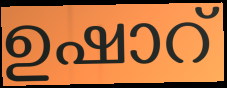
ഉഷാറ്